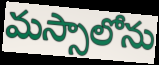
మస్సాలోను